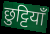
छुट्टियाँ